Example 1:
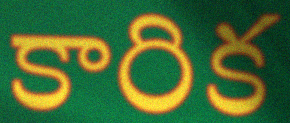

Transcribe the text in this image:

కారిక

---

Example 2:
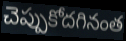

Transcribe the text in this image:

చెప్పుకోదగినంత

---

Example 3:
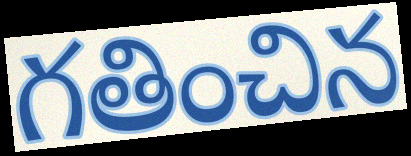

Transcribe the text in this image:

గతించిన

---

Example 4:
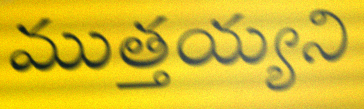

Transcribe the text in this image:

ముత్తయ్యని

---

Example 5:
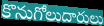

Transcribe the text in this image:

కొనుగోలుదారులు